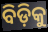
ବିଡ଼ିକୁ